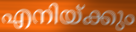
എനിയ്ക്കും